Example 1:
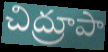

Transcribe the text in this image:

చిద్రూపా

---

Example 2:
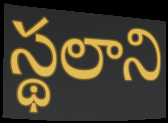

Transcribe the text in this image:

స్థలాని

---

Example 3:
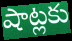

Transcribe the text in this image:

షాట్లకు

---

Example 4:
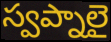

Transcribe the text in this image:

స్వప్నాలై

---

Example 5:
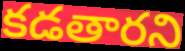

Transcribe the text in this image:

కడతారని